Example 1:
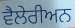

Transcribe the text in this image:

ਵੈਲੇਰੀਅਨ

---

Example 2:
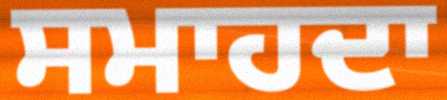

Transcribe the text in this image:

ਸਮਾਹਦਾ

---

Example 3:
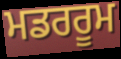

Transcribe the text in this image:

ਮਡਰਰੂਮ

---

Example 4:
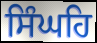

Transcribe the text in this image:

ਸਿੰਘਹਿ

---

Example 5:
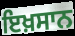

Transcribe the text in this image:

ਇਖ਼ਸਾਨ